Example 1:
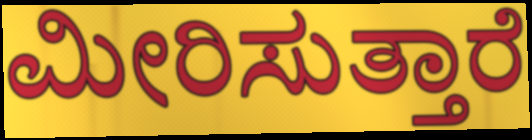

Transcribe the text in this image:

ಮೀರಿಸುತ್ತಾರೆ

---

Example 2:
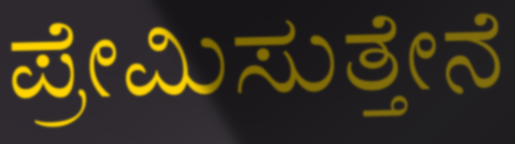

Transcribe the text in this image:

ಪ್ರೇಮಿಸುತ್ತೇನೆ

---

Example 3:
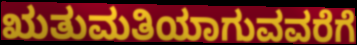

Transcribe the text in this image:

ಋತುಮತಿಯಾಗುವವರೆಗೆ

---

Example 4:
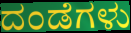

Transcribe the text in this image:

ದಂಡೆಗಳು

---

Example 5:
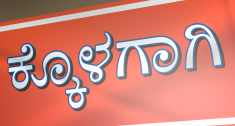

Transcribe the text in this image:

ಕ್ಕೊಳಗಾಗಿ